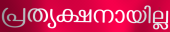
പ്രത്യക്ഷനായില്ല